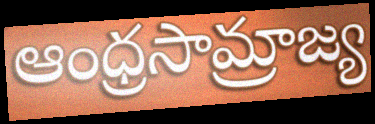
ఆంధ్రసామ్రాజ్య